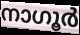
നാഗൂർ